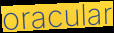
oracular